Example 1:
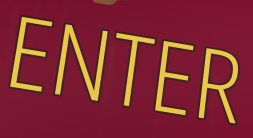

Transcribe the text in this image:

ENTER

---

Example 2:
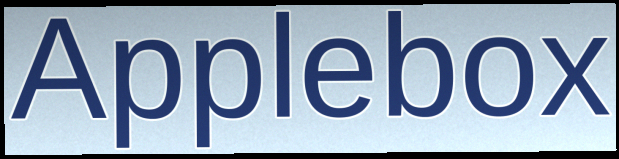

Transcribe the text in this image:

Applebox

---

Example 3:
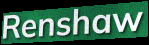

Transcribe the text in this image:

Renshaw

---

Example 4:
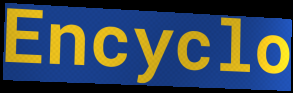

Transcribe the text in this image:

Encyclo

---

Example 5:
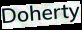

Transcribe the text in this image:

Doherty